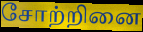
சோற்றினை